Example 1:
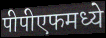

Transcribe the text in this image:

पीपीएफमध्ये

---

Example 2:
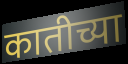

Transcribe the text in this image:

कातीच्या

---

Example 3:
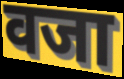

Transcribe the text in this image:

वजा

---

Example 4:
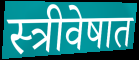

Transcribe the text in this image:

स्त्रीवेषात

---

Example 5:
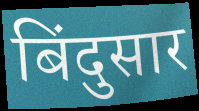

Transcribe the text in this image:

बिंदुसार